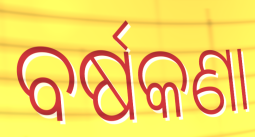
ବର୍ଷକଣା